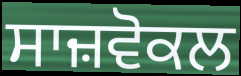
ਸਾਜ਼ਵੋਕਲ